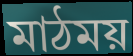
মাঠময়